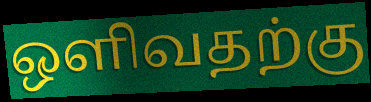
ஒளிவதற்கு